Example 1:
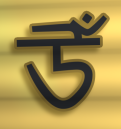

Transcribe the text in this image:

উঁ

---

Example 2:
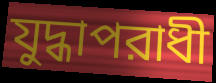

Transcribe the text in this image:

যুদ্ধাপরাধী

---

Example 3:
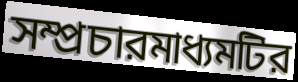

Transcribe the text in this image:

সম্প্রচারমাধ্যমটির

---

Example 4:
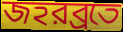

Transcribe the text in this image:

জহরব্রতে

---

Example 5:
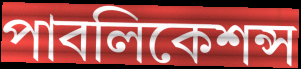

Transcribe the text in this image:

পাবলিকেশন্স